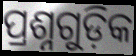
ପ୍ରଶ୍ନଗୁଡ଼ିକ